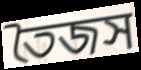
তৈজস